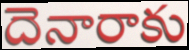
దెనారాకు